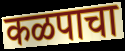
कळपाचा